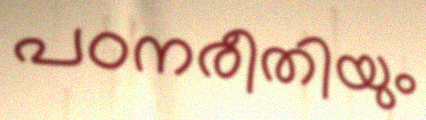
പഠനരീതിയും